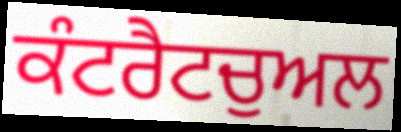
ਕੰਟਰੈਟਚੁਅਲ